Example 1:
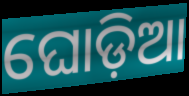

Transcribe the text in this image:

ଘୋଡ଼ିଆ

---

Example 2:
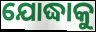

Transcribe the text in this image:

ଯୋଦ୍ଧାକୁ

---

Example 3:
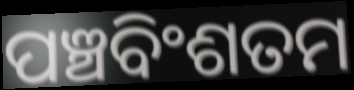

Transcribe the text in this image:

ପଞ୍ଚବିଂଶତମ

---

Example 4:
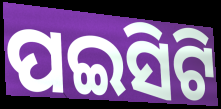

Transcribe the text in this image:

ପଇସିଟି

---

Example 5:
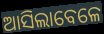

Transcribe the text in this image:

ଆସିଲାବେଳେ